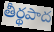
తీర్థపాద